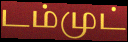
டம்முட்